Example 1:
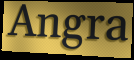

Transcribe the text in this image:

Angra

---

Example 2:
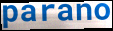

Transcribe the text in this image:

parano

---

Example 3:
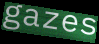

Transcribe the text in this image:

gazes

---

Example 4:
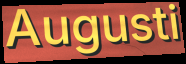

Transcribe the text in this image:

Augusti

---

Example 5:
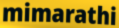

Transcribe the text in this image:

mimarathi